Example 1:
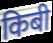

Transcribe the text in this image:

किबी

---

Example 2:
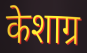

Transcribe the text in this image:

केशाग्र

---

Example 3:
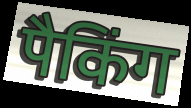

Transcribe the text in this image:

पैकिंग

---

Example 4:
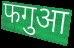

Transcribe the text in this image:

फगुआ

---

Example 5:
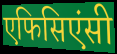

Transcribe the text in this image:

एफिसिएंसी